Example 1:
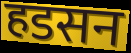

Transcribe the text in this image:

हडसन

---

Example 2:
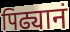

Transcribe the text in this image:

पिढ्यानं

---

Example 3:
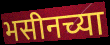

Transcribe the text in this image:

भसीनच्या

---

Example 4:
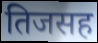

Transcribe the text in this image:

तिजसह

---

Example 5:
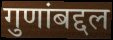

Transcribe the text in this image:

गुणांबद्दल